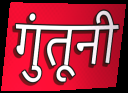
गुंतूनी